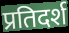
प्रतिदर्श